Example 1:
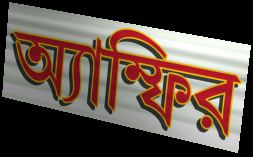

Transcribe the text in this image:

অ্যাম্ফির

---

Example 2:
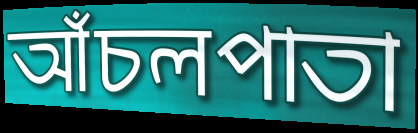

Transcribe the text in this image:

আঁচলপাতা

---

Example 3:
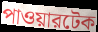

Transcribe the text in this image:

পাওয়ারটেক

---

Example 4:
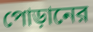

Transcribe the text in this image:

পোড়ানের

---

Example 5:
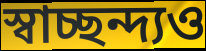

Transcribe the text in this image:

স্বাচ্ছন্দ্যও